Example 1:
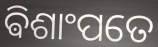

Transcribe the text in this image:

ଵିଶାଂପତେ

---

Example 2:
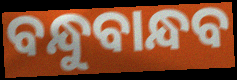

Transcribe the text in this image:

ବନ୍ଧୁବାନ୍ଧବ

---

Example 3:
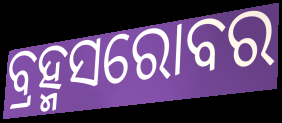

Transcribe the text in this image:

ବ୍ରହ୍ମସରୋବର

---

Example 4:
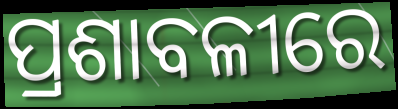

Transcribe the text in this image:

ପ୍ରଶାବଳୀରେ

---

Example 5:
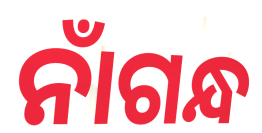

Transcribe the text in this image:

ନାଁଗନ୍ଧ